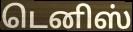
டெனிஸ்